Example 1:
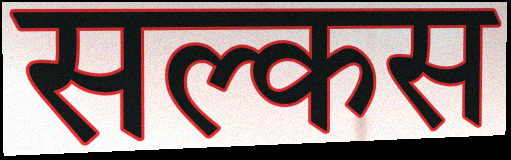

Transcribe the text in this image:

सल्कस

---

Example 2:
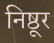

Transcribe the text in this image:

निष्ठूर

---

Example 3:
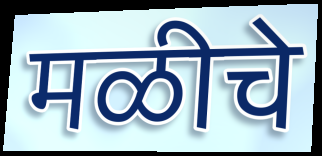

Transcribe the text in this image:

मळीचे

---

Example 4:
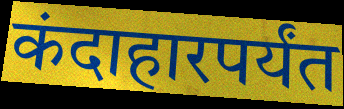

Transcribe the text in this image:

कंदाहारपर्यंत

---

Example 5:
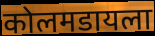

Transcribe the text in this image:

कोलमडायला